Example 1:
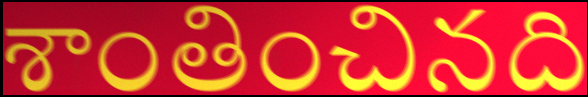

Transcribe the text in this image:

శాంతించినది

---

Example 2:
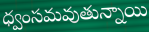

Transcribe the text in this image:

ధ్వంసమవుతున్నాయి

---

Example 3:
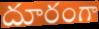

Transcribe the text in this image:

దూరంగా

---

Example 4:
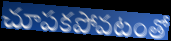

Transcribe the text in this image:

చూపకపోవటంతో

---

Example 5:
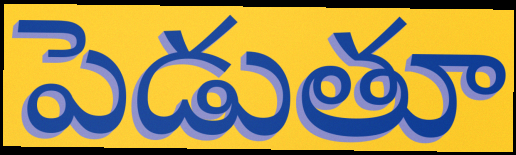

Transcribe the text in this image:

పెడుతూ